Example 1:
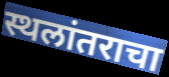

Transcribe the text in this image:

स्थलांतराचा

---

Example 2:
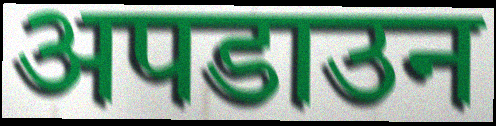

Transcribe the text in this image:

अपडाउन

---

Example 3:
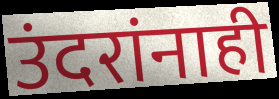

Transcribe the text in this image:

उंदरांनाही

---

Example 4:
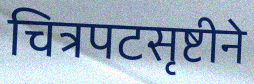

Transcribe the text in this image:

चित्रपटसृष्टीने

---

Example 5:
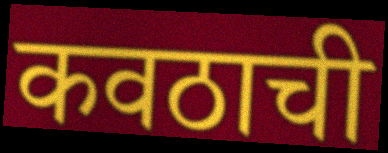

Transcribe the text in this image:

कवठाची